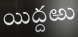
యిద్దఱు